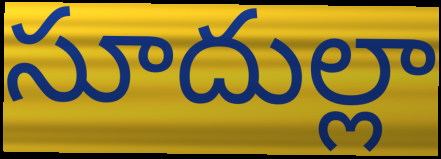
సూదుల్లా